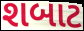
શબાટ